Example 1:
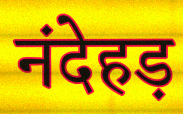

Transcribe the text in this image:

नंदेहड़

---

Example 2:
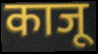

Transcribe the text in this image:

काजू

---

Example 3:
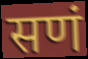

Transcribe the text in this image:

सणं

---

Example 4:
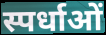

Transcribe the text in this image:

स्पर्धाओं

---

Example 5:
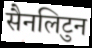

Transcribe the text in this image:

सैनलिटुन